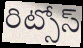
రిట్సోస్